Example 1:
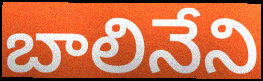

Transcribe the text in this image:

బాలినేని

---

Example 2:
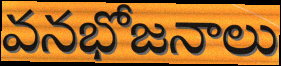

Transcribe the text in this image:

వనభోజనాలు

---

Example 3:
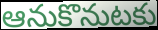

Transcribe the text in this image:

ఆనుకొనుటకు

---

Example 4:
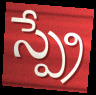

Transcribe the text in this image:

స్ప్రే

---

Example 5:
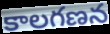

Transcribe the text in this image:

కాలగణన